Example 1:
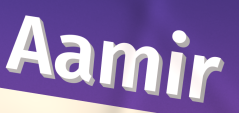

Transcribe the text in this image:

Aamir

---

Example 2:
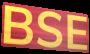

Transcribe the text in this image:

BSE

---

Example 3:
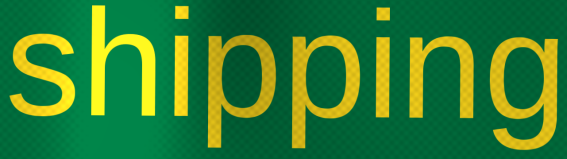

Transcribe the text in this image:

shipping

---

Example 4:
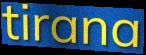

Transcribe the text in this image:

tirana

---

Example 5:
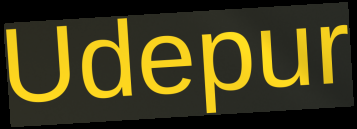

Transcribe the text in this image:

Udepur